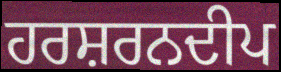
ਹਰਸ਼ਰਨਦੀਪ